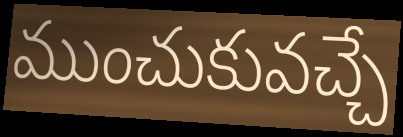
ముంచుకువచ్చే